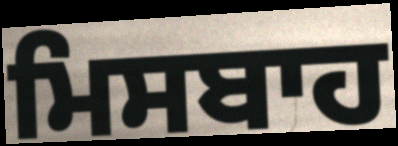
ਮਿਸਬਾਹ